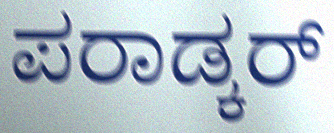
ಪರಾಡ್ಕರ್